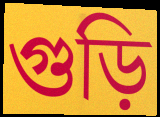
গুড়ি